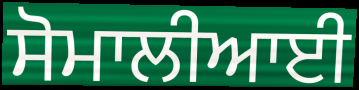
ਸੋਮਾਲੀਆਈ